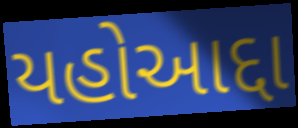
યહોઆદ્દા